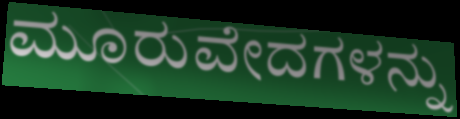
ಮೂರುವೇದಗಳನ್ನು